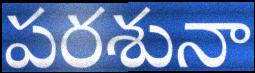
పరశునా